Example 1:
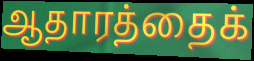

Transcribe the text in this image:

ஆதாரத்தைக்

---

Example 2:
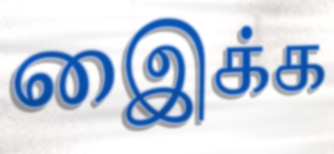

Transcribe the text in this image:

இைக்க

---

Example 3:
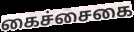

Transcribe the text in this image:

கைச்சைகை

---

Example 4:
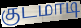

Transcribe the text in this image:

குடமாடி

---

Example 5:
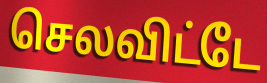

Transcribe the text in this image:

செலவிட்டே